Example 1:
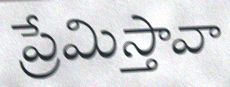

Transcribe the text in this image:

ప్రేమిస్తావా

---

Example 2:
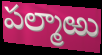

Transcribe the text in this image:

పల్మాఱు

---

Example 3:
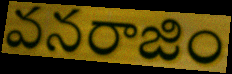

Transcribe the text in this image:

వనరాజిం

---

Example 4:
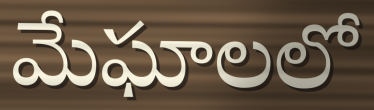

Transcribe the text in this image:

మేఘాలలో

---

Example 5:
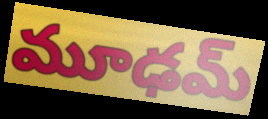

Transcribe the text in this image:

మూఢమ్